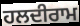
ਹਲਦੀਰਾਮ